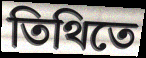
তিথিতে